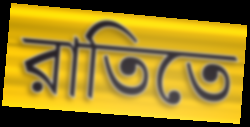
রাতিতে